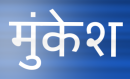
मुंकेश